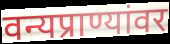
वन्यप्राण्यांवर